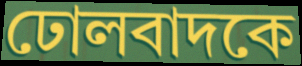
ঢোলবাদকে